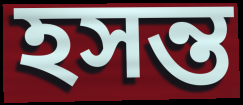
হসন্ত